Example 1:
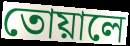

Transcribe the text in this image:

তোয়ালে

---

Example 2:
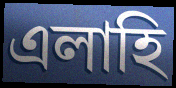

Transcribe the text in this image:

এলাহি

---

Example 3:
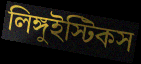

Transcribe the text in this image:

লিঙ্গুইস্টিকস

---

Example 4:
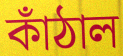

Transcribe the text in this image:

কাঁঠাল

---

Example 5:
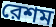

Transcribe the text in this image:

রেশম